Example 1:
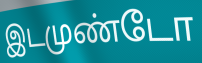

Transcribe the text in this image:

இடமுண்டோ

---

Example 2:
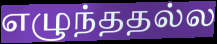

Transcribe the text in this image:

எழுந்ததல்ல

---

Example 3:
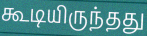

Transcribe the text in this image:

கூடியிருந்தது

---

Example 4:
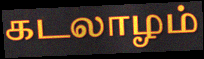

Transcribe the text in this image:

கடலாழம்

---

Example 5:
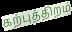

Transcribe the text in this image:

கற்புத்திறம்